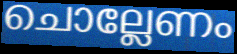
ചൊല്ലേണം